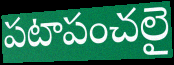
పటాపంచలై